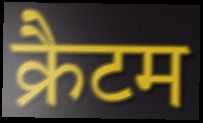
क्रैटम